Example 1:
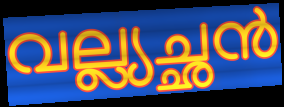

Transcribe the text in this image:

വല്ല്യച്ഛൻ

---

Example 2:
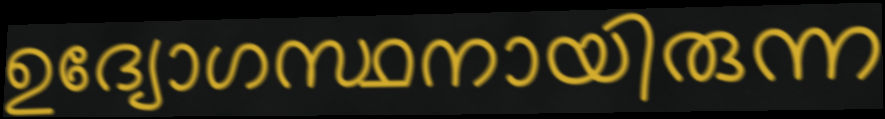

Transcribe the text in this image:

ഉദ്യോഗസ്ഥനായിരുന്ന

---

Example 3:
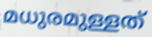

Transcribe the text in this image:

മധുരമുള്ളത്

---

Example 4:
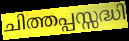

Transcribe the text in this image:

ചിത്തപ്പസ്സദ്ധി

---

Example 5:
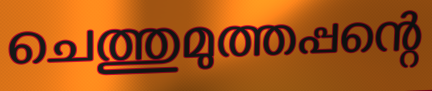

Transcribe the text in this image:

ചെത്തുമുത്തപ്പന്റെ